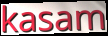
kasam